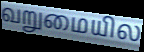
வறுமையில